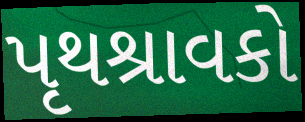
પૃથશ્રાવકો